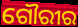
ଗୌରୀର